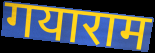
गयाराम